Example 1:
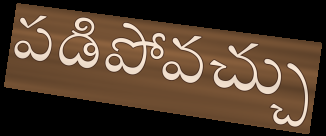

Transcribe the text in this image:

పడిపోవచ్చు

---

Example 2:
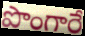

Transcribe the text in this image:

పొంగారే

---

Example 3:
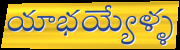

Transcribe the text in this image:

యాభయ్యేళ్ళ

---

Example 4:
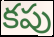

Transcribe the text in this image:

కపు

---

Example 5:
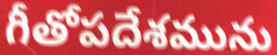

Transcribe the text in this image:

గీతోపదేశమును